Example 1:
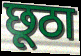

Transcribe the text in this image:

छूठा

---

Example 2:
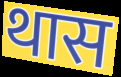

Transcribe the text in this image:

थास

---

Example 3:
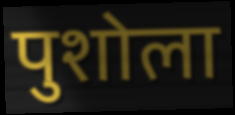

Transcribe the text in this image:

पुशोला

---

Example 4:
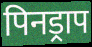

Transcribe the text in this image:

पिनड्राप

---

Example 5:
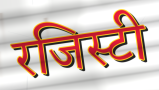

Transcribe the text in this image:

रजिस्टी